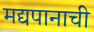
मद्यपानाची